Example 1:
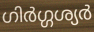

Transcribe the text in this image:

ഗിർഗ്ഗശ്യർ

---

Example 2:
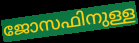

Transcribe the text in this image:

ജോസഫിനുള്ള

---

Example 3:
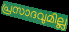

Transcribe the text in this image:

പ്രസാദവുമില്ല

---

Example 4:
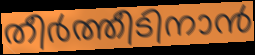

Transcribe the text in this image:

തീർത്തീടിനാൻ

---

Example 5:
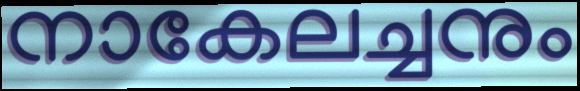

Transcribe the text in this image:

നാകേലച്ചനും